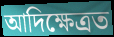
আদিক্ষেত্ৰত